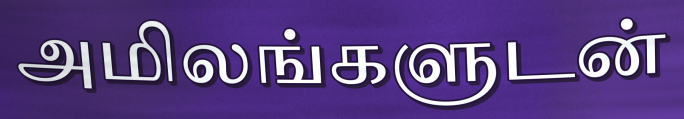
அமிலங்களுடன்